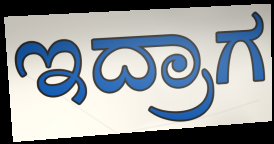
ಇದ್ರಾಗ